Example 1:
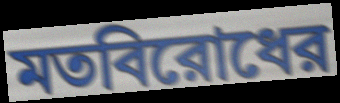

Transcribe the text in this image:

মতবিরোধের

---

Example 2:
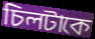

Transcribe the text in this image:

চিলটাকে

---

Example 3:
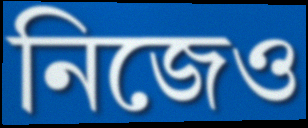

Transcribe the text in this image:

নিজেও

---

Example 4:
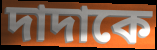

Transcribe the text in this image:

দাদাকে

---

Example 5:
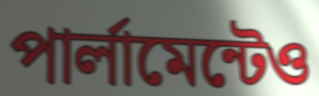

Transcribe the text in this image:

পার্লামেন্টেও